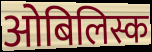
ओबिलिस्क